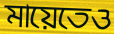
মায়েতেও